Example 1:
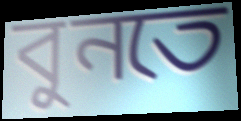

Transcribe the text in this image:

বুনতে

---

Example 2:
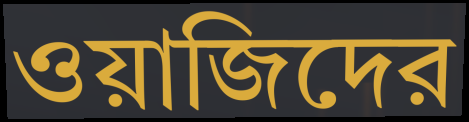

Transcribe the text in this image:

ওয়াজিদের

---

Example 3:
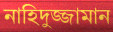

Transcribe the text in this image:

নাহিদুজ্জামান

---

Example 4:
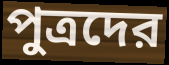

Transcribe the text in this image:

পুত্রদের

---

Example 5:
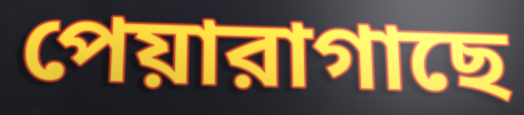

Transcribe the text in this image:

পেয়ারাগাছে